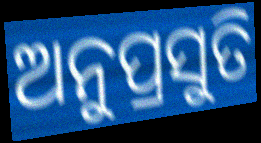
ଅନୁପ୍ରସୁତି